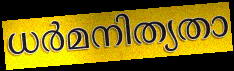
ധർമനിത്യതാ